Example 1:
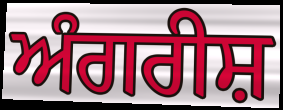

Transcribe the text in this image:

ਅੰਗਰੀਸ਼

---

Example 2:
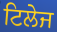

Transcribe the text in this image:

ਟਿਲੇਜ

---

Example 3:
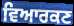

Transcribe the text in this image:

ਵਿਆਰਕਣ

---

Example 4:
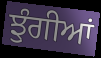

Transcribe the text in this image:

ਝੁੰਗੀਆਂ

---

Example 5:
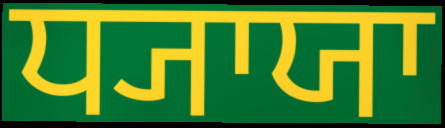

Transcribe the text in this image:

ਧ੍ਯਾਯਾ